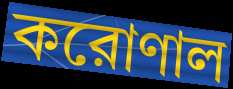
করোণাল